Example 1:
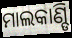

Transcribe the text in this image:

ମାଲକାଣ୍ଡି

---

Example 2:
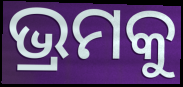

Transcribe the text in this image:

ଭ୍ରମକୁ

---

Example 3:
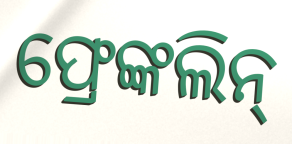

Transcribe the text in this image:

ଫ୍ରେଙ୍କଲିନ୍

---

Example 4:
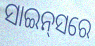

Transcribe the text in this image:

ସାଇନ୍‌ସରେ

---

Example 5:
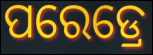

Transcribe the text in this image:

ପରେଡ୍ରେ